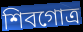
শিবগোত্র